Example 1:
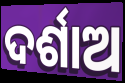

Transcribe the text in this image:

ଦର୍ଶାଅ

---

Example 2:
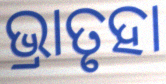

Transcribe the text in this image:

ଭ୍ରାତୃହା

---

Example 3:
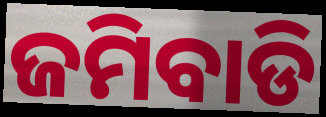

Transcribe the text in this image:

ଜମିବାଡି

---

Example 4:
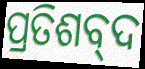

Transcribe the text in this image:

ପ୍ରତିଶବ୍‌ଦ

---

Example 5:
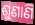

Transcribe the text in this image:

ଶୁଣାଣି